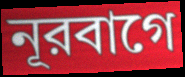
নূরবাগে